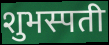
शुभस्पती